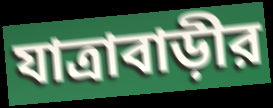
যাত্রাবাড়ীর